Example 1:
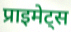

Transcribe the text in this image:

प्राइमेट्स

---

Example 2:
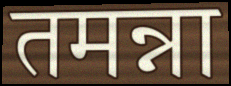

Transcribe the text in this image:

तमन्ना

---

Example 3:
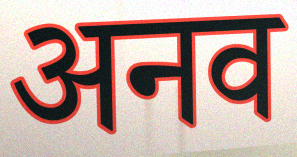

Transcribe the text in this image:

अनव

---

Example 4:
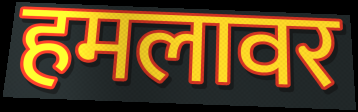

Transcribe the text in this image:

हमलावर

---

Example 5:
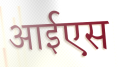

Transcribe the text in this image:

आईएस